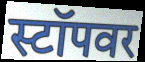
स्टॉपवर